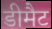
डीमैट